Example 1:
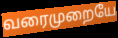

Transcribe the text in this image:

வரைமுறையே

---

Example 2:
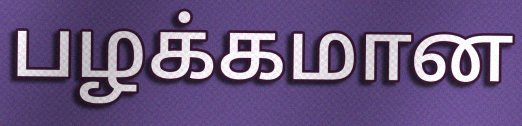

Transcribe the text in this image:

பழக்கமான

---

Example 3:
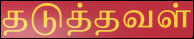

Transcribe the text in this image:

தடுத்தவள்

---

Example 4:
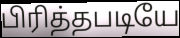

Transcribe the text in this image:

பிரித்தபடியே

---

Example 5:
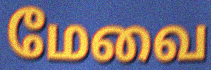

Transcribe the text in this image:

மேவை